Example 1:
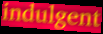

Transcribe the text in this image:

indulgent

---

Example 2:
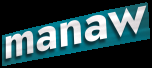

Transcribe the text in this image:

manaw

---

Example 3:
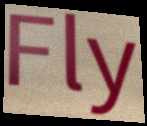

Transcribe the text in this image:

Fly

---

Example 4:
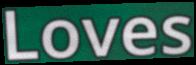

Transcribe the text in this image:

Loves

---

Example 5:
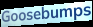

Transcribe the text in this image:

Goosebumps